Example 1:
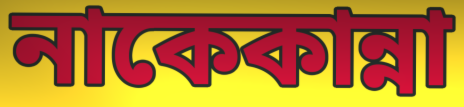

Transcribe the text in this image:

নাকেকান্না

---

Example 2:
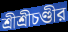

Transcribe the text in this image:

শ্রীশ্রীচণ্ডীর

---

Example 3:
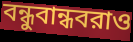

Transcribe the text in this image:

বন্ধুবান্ধবরাও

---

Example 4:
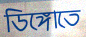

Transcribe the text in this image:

ডিঙ্গোতে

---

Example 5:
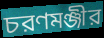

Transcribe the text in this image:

চরণমঞ্জীর